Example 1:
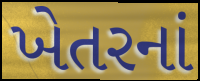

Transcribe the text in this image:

ખેતરનાં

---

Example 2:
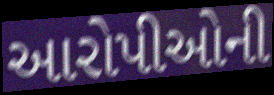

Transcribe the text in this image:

આરોપીઓની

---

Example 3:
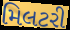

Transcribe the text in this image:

મિલટરી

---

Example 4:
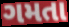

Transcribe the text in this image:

ગમતા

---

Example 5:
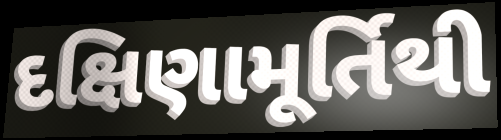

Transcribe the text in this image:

દક્ષિણામૂર્તિથી